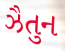
ઝૈતુન